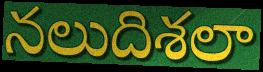
నలుదిశలా